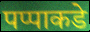
पप्पाकडे